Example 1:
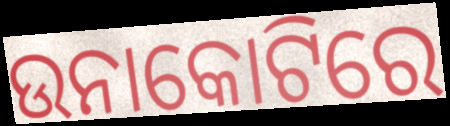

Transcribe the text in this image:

ଉନାକୋଟିରେ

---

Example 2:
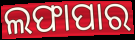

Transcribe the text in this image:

ଲଫାପାର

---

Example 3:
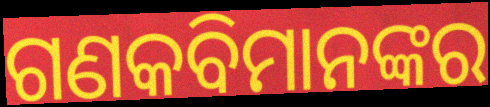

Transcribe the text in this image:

ଗଣକବିମାନଙ୍କର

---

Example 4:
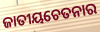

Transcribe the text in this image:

ଜାତୀୟଚେତନାର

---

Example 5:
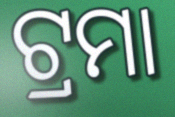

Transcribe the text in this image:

ଟ୍ରମା